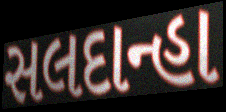
સલદાન્હા